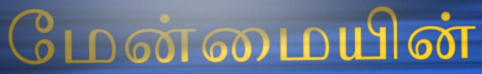
மேன்மையின்